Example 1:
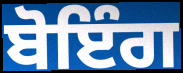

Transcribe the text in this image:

ਬੋਇੰਗ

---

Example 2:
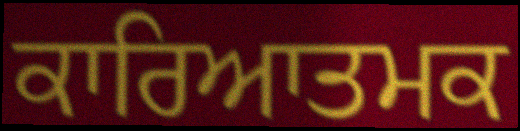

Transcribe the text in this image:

ਕਾਰਿਆਤਮਕ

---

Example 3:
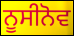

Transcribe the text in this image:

ਨੂਸੀਨੋਵ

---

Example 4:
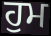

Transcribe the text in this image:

ਹੁਮ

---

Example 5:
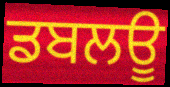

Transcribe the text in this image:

ਡਬਲਊ